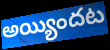
అయ్యిందట